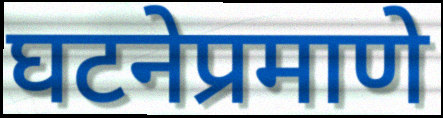
घटनेप्रमाणे